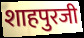
शाहपुरजी